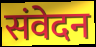
संवेदन